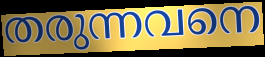
തരുന്നവനെ